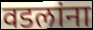
वडलांना